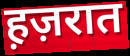
ह़ज़रात